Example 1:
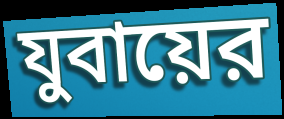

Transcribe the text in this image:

যুবায়ের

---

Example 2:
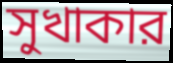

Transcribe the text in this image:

সুখাকার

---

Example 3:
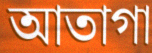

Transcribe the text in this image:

আতাগা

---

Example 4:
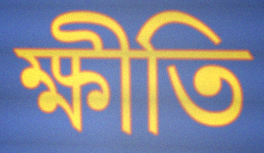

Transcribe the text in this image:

ক্ষীতি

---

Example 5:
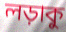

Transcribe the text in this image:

লড়াকু